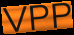
VPP